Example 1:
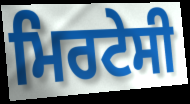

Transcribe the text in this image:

ਮਿਰਟੇਸੀ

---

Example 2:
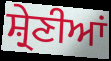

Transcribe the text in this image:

ਸ਼੍ਰੇਣੀਆਂ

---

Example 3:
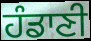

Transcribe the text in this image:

ਹੰਡਾਣੀ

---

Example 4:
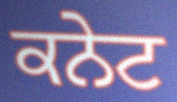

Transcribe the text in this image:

ਕਨੇਟ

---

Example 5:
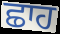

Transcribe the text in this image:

ਛਾਹ